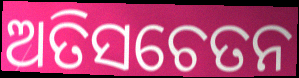
ଅତିସଚେତନ